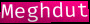
Meghdut